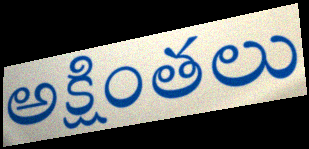
అక్షింతలు